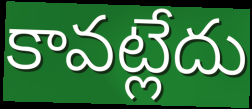
కావట్లేదు